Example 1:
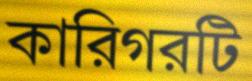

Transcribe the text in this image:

কারিগরটি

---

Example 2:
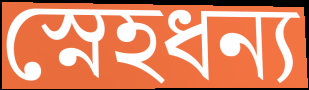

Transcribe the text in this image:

স্নেহধন্য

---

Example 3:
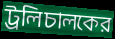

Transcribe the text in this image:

ট্রলিচালকের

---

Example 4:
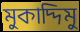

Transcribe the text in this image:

মুকাদ্দিমু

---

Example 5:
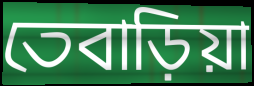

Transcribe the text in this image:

তেবাড়িয়া